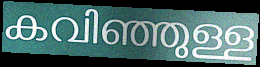
കവിഞ്ഞുള്ള